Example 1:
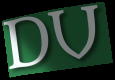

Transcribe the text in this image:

DU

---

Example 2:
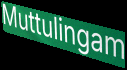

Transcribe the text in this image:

Muttulingam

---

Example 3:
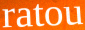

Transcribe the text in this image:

ratou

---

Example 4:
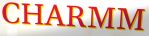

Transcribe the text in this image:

CHARMM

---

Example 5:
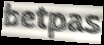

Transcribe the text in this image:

betpas